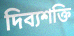
দিব্যশক্তি